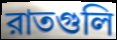
রাতগুলি